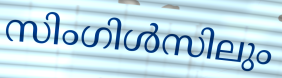
സിംഗിൾസിലും